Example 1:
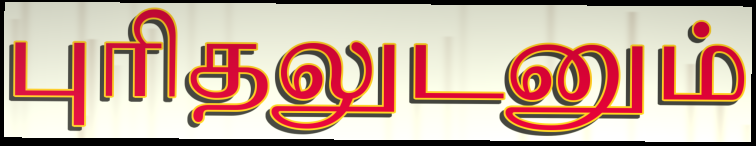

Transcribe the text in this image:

புரிதலுடனும்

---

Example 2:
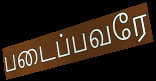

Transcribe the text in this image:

படைப்பவரே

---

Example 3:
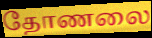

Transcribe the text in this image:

தோணலை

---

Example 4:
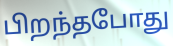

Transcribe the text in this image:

பிறந்தபோது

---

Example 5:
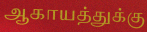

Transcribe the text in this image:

ஆகாயத்துக்கு